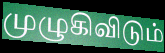
முழுகிவிடும்